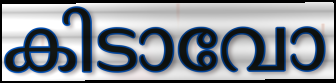
കിടാവോ